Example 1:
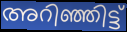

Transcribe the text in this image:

അറിഞ്ഞിട്ട്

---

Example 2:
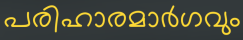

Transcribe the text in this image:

പരിഹാരമാർഗവും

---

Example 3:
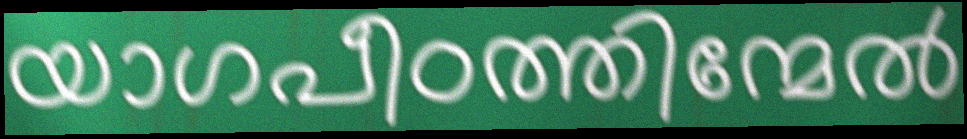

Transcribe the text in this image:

യാഗപീഠത്തിന്മേൽ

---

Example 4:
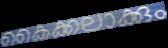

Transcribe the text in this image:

കൈക്കലാക്കും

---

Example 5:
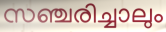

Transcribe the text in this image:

സഞ്ചരിച്ചാലും